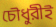
চৌধুরীই